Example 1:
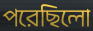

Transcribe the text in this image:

পরেছিলো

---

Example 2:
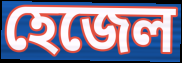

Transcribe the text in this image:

হেজেল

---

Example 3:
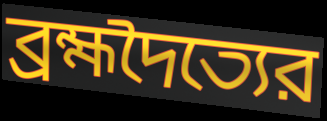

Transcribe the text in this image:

ব্রহ্মদৈত্যের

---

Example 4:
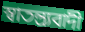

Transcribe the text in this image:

স্বাতন্ত্র্যবাদী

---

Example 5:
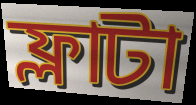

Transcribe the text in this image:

ফ্লাটা